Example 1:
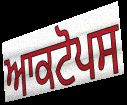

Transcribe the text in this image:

ਆਕਟੋਪਸ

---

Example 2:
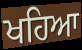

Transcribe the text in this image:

ਖਹਿਆ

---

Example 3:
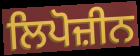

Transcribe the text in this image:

ਲਿਪੋਜ਼ੀਨ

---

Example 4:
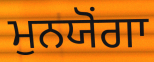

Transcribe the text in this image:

ਮੁਨਯੋਂਗਾ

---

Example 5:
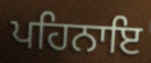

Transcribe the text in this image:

ਪਹਿਨਾਇ